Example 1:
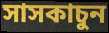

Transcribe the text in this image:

সাসকাচুন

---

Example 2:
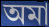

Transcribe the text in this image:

অমা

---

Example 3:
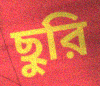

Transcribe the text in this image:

ছুরি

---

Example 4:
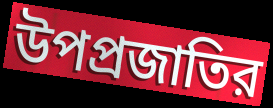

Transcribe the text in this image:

উপপ্রজাতির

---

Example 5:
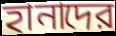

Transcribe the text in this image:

হানাদের